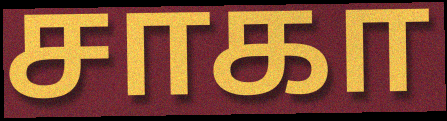
சாகா